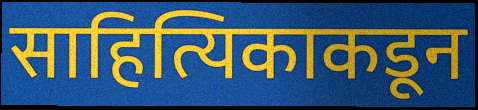
साहित्यिकाकडून